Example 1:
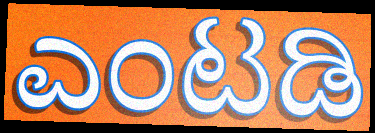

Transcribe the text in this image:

ಎಂಟಡಿ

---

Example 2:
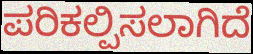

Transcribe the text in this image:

ಪರಿಕಲ್ಪಿಸಲಾಗಿದೆ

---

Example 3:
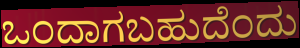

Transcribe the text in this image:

ಒಂದಾಗಬಹುದೆಂದು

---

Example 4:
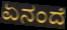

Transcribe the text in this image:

ಏನಂದೆ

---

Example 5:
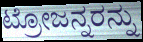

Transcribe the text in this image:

ಟ್ರೋಜನ್ನರನ್ನು